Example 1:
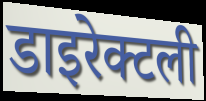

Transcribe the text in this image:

डाइरेक्टली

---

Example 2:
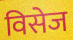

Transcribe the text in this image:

विसेज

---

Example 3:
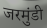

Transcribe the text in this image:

जरमुंडी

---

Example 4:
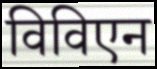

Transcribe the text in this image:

विविएन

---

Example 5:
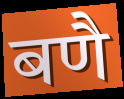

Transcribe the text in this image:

बणै